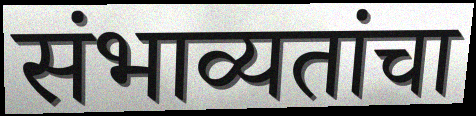
संभाव्यतांचा